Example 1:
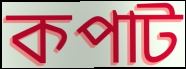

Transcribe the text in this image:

কপাট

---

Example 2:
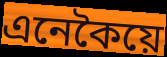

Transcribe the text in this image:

এনেকৈয়ে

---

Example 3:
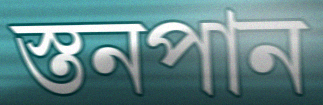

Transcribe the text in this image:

স্তনপান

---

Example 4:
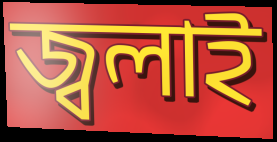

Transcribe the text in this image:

জ্বলাই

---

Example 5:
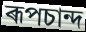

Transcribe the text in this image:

ৰূপচান্দ